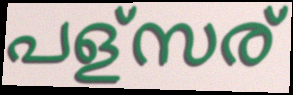
പള്സര്